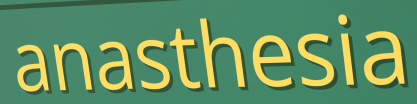
anasthesia